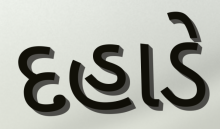
દહાડે